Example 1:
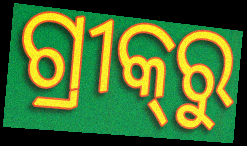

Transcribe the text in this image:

ଗ୍ରୀକ୍‌ରୁ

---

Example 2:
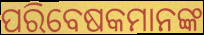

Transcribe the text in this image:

ପରିବେଷକମାନଙ୍କ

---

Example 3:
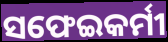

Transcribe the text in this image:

ସଫେଇକର୍ମୀ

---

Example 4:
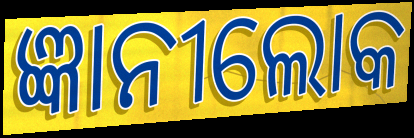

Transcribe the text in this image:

ଜ୍ଞାନୀଲୋକ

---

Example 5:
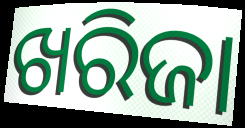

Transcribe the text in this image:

ଖରିଜା